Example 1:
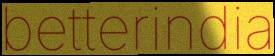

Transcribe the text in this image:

betterindia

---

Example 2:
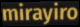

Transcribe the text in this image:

mirayiro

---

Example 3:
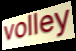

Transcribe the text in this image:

volley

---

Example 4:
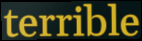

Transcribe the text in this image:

terrible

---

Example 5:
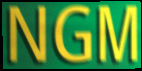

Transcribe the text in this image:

NGM